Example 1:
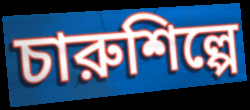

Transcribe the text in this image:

চারুশিল্পে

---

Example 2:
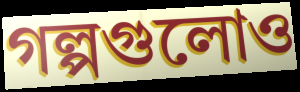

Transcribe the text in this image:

গল্পগুলোও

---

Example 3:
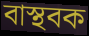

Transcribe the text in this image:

বাস্থবক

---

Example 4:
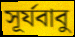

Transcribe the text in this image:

সূর্যবাবু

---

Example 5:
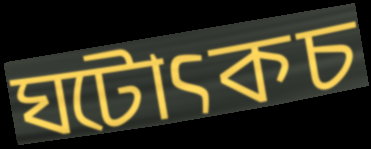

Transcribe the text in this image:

ঘটোৎকচ